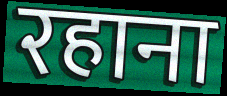
रहाना